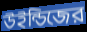
উইন্ডিজের